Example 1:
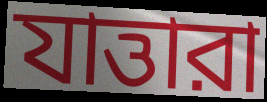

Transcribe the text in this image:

যাত্তারা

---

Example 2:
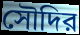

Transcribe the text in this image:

সৌদির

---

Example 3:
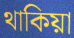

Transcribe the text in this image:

থাকিয়া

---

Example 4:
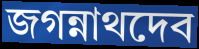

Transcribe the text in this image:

জগন্নাথদেব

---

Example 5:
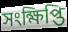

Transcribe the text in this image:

সংক্ষিপ্তি